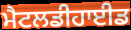
ਮੈਟਲਡੀਹਾਈਡ